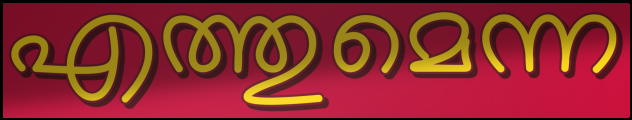
എത്തുമെന്ന